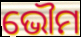
ଭୌମ